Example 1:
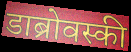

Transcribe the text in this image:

डाब्रोवस्की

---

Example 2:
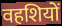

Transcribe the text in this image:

वहशियों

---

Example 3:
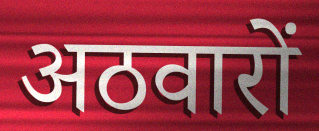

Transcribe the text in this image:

अठवारों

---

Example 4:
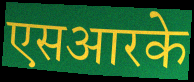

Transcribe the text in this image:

एसआरके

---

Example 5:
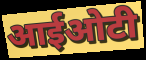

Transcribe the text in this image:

आईओटी